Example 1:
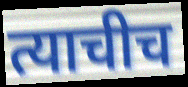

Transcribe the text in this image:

त्याचीच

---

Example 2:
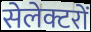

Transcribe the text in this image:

सेलेक्टरों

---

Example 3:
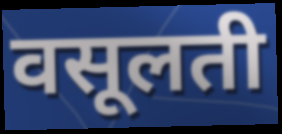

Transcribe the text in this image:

वसूलती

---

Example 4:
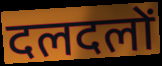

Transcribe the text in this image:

दलदलों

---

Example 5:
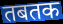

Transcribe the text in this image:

तबतक